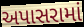
અપાસરામાં